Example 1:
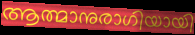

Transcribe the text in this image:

ആത്മാനുരാഗിയായി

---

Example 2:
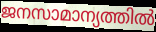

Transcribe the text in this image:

ജനസാമാന്യത്തിൽ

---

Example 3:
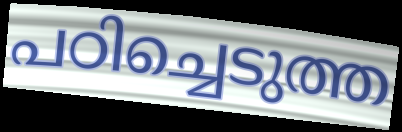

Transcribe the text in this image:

പഠിച്ചെടുത്ത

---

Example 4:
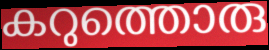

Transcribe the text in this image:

കറുത്തൊരു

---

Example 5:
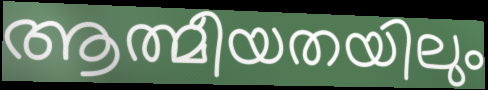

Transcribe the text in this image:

ആത്മീയതയിലും